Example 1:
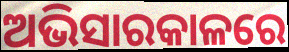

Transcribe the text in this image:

ଅଭିସାରକାଳରେ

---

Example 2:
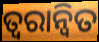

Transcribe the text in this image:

ତ୍ୱରାନ୍ଵିତ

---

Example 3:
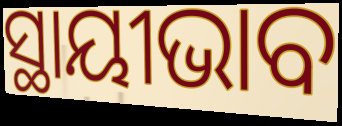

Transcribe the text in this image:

ସ୍ଥାୟୀଭାବ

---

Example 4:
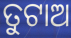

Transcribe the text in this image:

ତୁଟାଅ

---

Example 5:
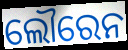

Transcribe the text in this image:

ଲୌରେନ